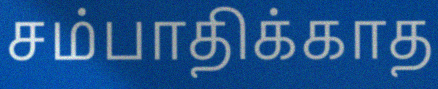
சம்பாதிக்காத